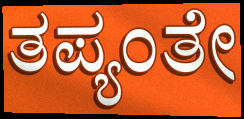
ತಪ್ಯಂತೇ